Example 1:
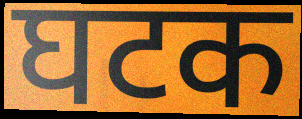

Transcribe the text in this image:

घटक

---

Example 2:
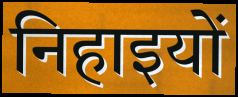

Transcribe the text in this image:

निहाइयों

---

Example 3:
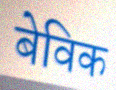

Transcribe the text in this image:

बेविक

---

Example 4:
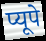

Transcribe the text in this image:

प्यूपे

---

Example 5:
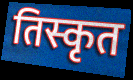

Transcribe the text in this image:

तिस्कृत